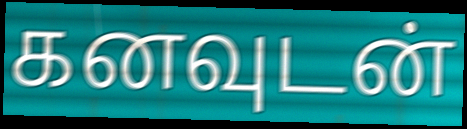
கனவுடன்